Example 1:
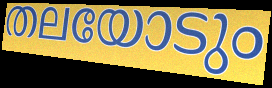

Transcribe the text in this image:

തലയോടും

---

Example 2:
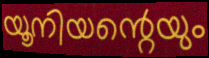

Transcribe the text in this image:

യൂനിയന്റെയും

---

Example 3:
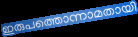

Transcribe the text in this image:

ഇരുപത്തൊന്നാമതായി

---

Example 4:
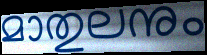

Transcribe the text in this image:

മാതുലനും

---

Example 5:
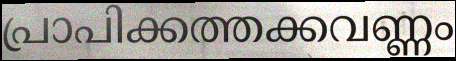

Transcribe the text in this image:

പ്രാപിക്കത്തക്കവണ്ണം